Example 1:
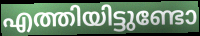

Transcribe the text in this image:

എത്തിയിട്ടുണ്ടോ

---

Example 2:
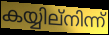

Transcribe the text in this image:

കയ്യില്നിന്ന്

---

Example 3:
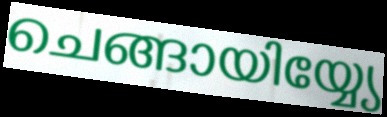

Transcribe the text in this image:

ചെങ്ങായിയ്യ്യേ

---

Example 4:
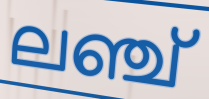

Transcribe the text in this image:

ലഞ്ച്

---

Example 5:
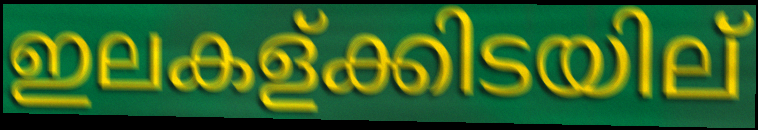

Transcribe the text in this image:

ഇലകള്ക്കിടയില്